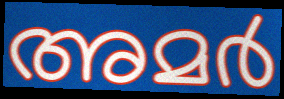
അമർ